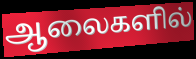
ஆலைகளில்